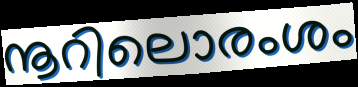
നൂറിലൊരംശം